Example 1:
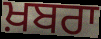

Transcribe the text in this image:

ਖ਼ਬਰਾ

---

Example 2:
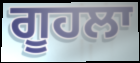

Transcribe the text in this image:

ਗੂਹਲਾ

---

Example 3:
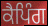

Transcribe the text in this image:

ਕੈਪਿੰਗ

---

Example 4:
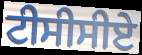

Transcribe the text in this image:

ਟੀਸੀਸੀਏ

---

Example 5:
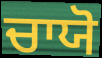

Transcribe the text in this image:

ਚਾਯੋ